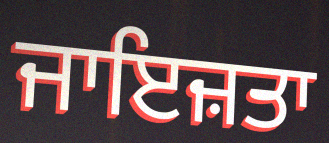
ਜਾਇਜ਼ਤਾ